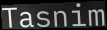
Tasnim